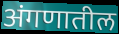
अंगणातील